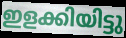
ഇളക്കിയിട്ടു